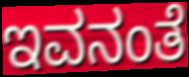
ಇವನಂತೆ